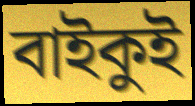
বাইকুই